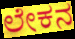
ಲೇಕನ